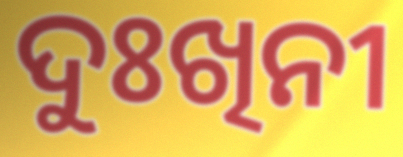
ଦୁଃଖିନୀ